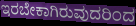
ಇರಬೇಕಾಗಿರುವುದರಿಂದ